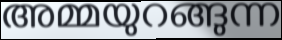
അമ്മയുറങ്ങുന്ന